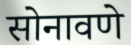
सोनावणे